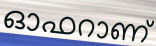
ഓഫറാണ്